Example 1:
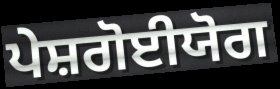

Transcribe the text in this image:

ਪੇਸ਼ਗੋਈਯੋਗ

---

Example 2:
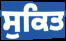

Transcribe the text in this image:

ਸੁਕਿਤ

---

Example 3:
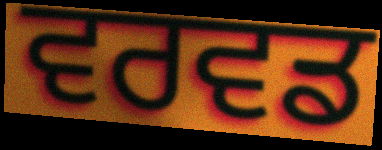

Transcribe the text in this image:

ਵਰਵਡ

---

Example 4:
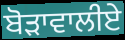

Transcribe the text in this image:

ਬੋੜਾਵਾਲੀਏ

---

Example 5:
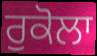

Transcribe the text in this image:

ਰੁਕੋਲਾ